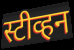
स्टीव्हन